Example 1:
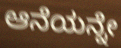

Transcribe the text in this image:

ಆನೆಯನ್ನೇ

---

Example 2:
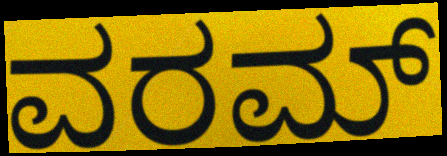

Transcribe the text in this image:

ವರಮ್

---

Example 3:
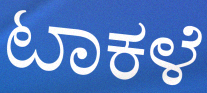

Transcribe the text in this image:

ಟಾಕಳೆ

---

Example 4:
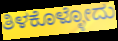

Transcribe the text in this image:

ತಿಳಕೊಳ್ಳೋದು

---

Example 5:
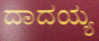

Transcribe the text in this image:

ದಾದಯ್ಯ